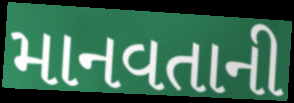
માનવતાની